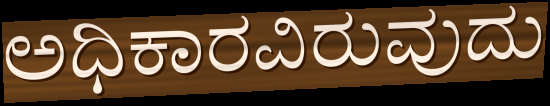
ಅಧಿಕಾರವಿರುವುದು